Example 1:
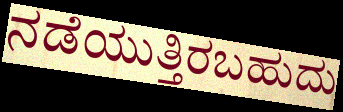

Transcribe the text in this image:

ನಡೆಯುತ್ತಿರಬಹುದು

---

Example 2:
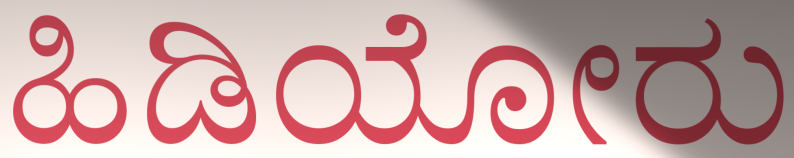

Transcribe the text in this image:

ಹಿಡಿಯೋರು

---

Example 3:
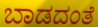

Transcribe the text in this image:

ಬಾಡದಂತೆ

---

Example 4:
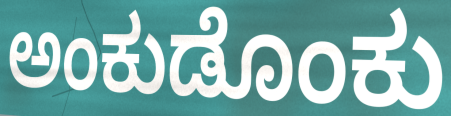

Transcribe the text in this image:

ಅಂಕುಡೊಂಕು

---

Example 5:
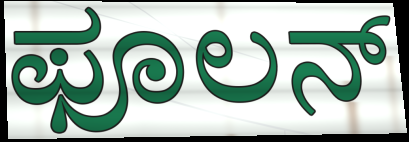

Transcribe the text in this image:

ಫೂಲನ್